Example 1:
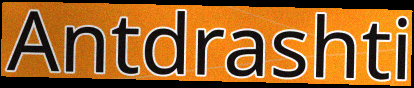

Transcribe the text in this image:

Antdrashti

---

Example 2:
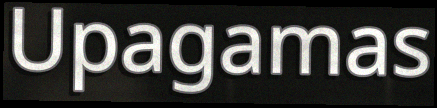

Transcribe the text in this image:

Upagamas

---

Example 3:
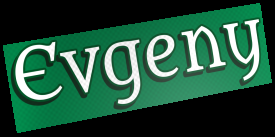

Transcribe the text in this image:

Evgeny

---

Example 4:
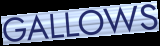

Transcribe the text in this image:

GALLOWS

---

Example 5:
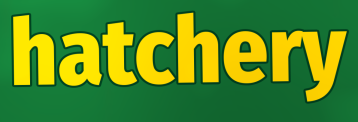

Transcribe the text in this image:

hatchery